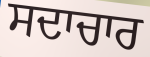
ਸਦਾਚਾਰ